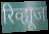
रिव्ह्यूज